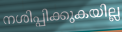
നശിപ്പിക്കുകയില്ല